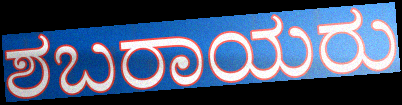
ಶಬರಾಯರು